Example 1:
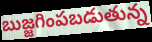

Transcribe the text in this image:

బుజ్జగింపబడుతున్న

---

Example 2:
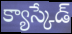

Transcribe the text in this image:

క్యాస్కేడ్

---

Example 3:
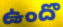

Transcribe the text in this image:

ఉందొ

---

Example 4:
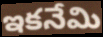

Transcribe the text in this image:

ఇకనేమి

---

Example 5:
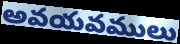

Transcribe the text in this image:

అవయవములు